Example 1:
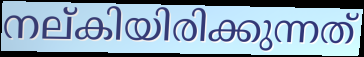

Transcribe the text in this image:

നല്കിയിരിക്കുന്നത്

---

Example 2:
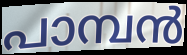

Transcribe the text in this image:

പാമ്പൻ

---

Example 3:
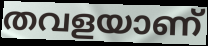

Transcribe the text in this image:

തവളയാണ്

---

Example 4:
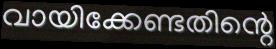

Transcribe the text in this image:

വായിക്കേണ്ടതിന്റെ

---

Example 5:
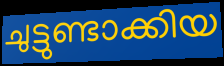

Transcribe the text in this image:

ചുട്ടുണ്ടാക്കിയ